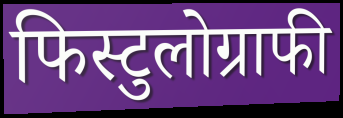
फिस्टुलोग्राफी